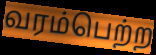
வரம்பெற்ற